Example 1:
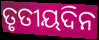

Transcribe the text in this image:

ତୃତୀୟଦିନ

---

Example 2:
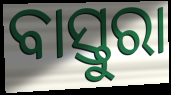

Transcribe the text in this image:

ବାସ୍ତୁରା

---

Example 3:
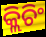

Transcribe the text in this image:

କ୍ଲିଚିଂ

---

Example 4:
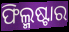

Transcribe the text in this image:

ଫିଲ୍ମଷ୍ଟାର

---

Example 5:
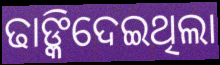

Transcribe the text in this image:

ଢାଙ୍କିଦେଇଥିଲା